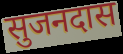
सुजनदास